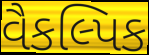
વૈકલ્પિક